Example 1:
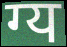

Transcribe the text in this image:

ग्य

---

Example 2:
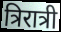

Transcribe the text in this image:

त्रिरात्री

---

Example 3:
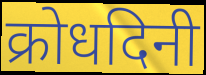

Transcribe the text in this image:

क्रोधदिनी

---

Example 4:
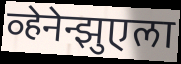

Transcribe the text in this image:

व्हेनेन्झुएला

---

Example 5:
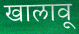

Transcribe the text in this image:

खालावू